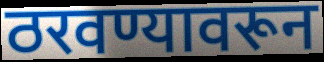
ठरवण्यावरून